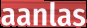
aanlas